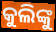
କୁଲିଙ୍କୁ